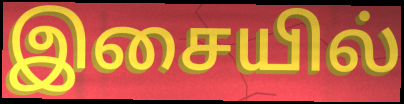
இசையில்